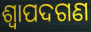
ଶ୍ୱାପଦଗଣ